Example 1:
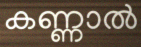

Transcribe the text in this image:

കണ്ണാൽ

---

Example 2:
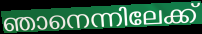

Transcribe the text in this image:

ഞാനെന്നിലേക്ക്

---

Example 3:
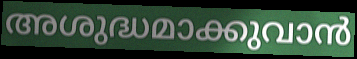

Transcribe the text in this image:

അശുദ്ധമാക്കുവാൻ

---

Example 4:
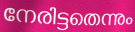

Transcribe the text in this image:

നേരിട്ടതെന്നും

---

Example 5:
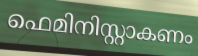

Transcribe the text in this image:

ഫെമിനിസ്റ്റാകണം